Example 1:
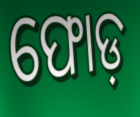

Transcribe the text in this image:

ଫୋଡ଼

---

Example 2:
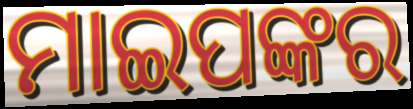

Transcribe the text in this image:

ମାଇପଙ୍କର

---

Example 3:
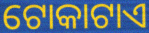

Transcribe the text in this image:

ଟୋକାଟାଏ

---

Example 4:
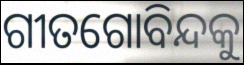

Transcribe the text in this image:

ଗୀତଗୋବିନ୍ଦକୁ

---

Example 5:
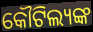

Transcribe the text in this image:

କୌଟିଲ୍ୟଙ୍କ